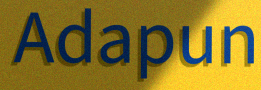
Adapun